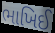
ભાખિઈ